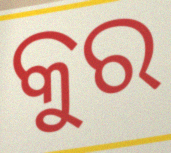
କୁର